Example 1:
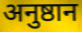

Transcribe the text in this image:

अनुष्ठान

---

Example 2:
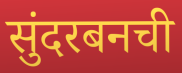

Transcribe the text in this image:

सुंदरबनची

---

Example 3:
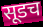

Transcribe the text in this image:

सूडच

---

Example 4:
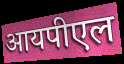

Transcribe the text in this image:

आयपीएल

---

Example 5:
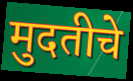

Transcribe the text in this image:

मुदतीचे